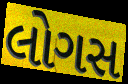
લોગસ